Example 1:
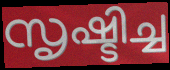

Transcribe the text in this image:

സൃഷ്ടിച്ച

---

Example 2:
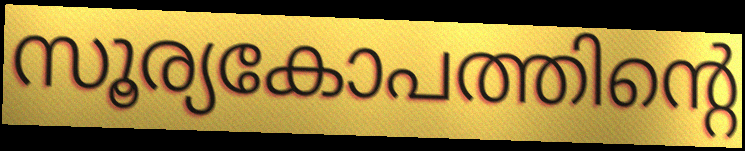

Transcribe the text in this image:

സൂര്യകോപത്തിന്റെ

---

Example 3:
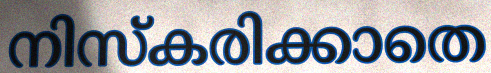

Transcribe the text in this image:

നിസ്കരിക്കാതെ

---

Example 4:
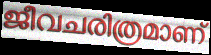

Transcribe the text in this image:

ജീവചരിത്രമാണ്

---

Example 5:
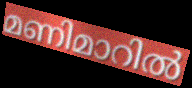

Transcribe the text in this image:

മണിമാറിൽ